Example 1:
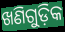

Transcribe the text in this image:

ଖଣିଗୁଡ଼ିକ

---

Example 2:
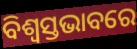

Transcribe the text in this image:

ବିଶ୍ୱସ୍ତଭାବରେ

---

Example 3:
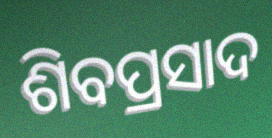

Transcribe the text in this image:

ଶିବପ୍ରସାଦ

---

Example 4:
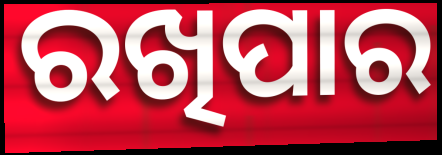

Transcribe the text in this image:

ରଖିପାର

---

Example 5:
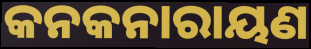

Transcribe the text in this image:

କନକନାରାୟଣ